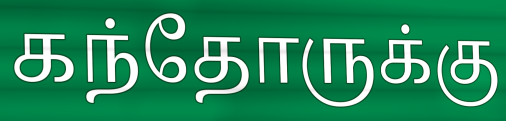
கந்தோருக்கு